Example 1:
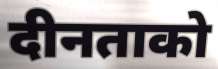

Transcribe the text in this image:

दीनताको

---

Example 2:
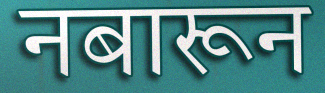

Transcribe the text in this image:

नबारून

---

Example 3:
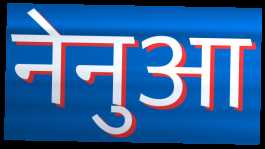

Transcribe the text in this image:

नेनुआ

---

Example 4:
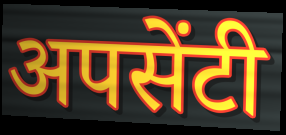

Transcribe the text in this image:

अपसेंटी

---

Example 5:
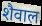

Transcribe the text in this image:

शैवाल